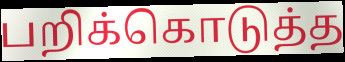
பறிக்கொடுத்த